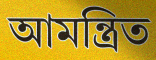
আমন্ত্রিত